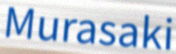
Murasaki